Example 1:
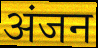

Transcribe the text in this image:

अंजन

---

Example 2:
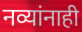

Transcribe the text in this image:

नव्यांनाही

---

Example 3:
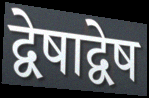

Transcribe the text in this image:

द्वेषाद्वेष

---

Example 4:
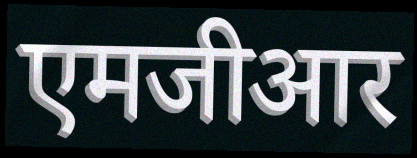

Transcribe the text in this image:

एमजीआर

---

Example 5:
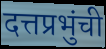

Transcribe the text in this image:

दत्तप्रभुंची